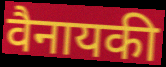
वैनायकी